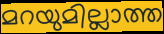
മറയുമില്ലാത്ത